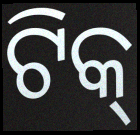
ଟିକ୍